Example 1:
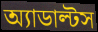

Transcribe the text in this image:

অ্যাডাল্টস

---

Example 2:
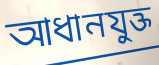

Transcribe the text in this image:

আধানযুক্ত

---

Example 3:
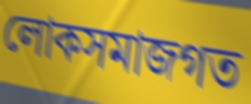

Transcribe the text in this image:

লোকসমাজগত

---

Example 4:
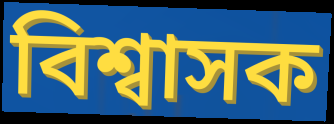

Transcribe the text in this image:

বিশ্বাসক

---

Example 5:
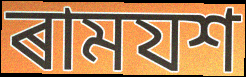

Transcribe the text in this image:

ৰামযশ